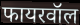
फायरवॉल